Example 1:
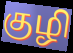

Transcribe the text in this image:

குழி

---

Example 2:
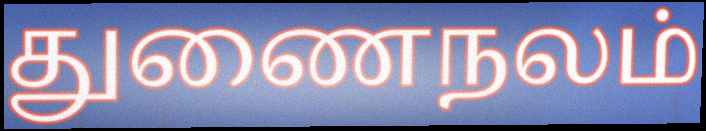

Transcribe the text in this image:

துணைநலம்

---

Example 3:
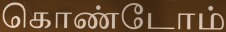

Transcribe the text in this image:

கொண்டோம்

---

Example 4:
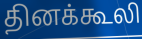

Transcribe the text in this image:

தினக்கூலி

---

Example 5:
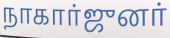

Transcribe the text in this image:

நாகார்ஜுனர்